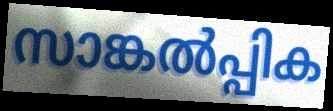
സാങ്കൽപ്പിക